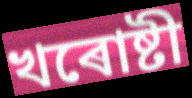
খৰোষ্টী